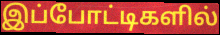
இப்போட்டிகளில்